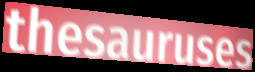
thesauruses